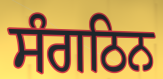
ਸੰਗਠਿਨ